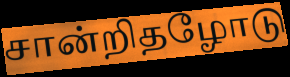
சான்றிதழோடு